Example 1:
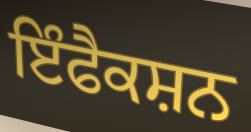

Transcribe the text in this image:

ਇੰਫੈਕਸ਼ਨ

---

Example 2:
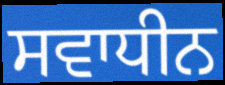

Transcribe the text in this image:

ਸਵਾਧੀਨ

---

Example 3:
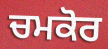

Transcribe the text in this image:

ਚਮਕੋਰ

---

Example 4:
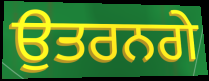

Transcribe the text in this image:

ਉਤਰਨਗੇ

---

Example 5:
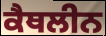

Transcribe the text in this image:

ਕੈਥਲੀਨ